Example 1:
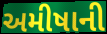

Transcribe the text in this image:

અમીષાની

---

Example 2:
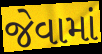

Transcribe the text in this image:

જેવામાં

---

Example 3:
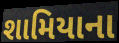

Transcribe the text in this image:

શામિયાના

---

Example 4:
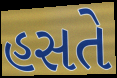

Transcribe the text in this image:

હસતે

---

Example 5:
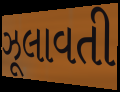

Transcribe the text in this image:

ઝૂલાવતી